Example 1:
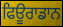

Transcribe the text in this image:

ਫਿਊਰਾਡਾਨ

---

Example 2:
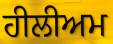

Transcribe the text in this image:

ਹੀਲੀਅਮ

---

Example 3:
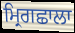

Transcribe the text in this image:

ਮ੍ਰਿਗਛਾਲਾ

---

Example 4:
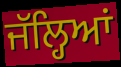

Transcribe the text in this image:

ਜੱਲ੍ਹਿਆਂ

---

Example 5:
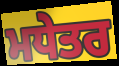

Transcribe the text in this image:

ਮਧੇਤਰ